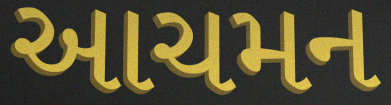
આચમન